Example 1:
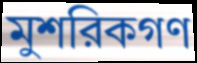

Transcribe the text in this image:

মুশরিকগণ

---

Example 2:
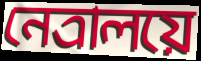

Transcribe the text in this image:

নেত্রালয়ে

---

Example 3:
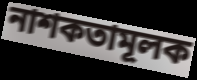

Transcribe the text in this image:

নাশকতামূলক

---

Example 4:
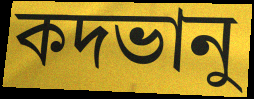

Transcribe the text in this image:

কদভানু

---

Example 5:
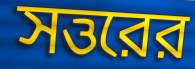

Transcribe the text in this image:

সত্তরের